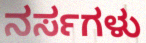
ನರ್ಸಗಳು